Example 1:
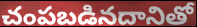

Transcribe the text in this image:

చంపబడినదానితో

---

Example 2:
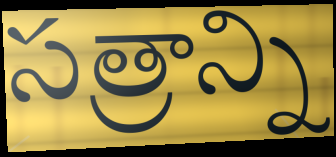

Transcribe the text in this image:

సత్రాన్ని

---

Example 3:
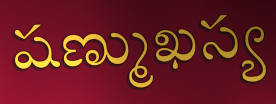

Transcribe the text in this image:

షణ్ముఖస్య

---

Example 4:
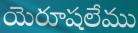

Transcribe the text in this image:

యెరూషలేము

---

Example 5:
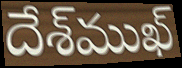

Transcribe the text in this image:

దేశ్‌ముఖ్